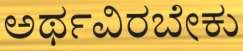
ಅರ್ಥವಿರಬೇಕು